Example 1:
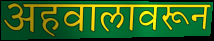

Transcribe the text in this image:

अहवालावरून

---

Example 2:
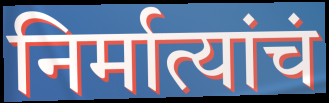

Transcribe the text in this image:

निर्मात्यांचं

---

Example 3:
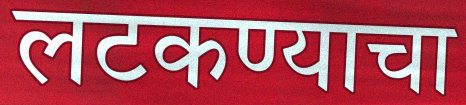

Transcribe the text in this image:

लटकण्याचा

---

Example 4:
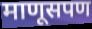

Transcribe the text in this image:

माणूसपण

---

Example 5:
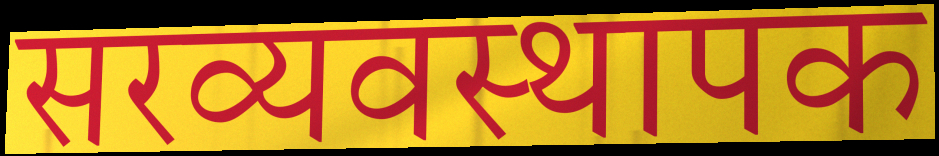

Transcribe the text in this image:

सरव्यवस्थापक